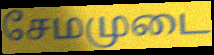
சேமமுடை